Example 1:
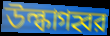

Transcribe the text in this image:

উল্কাগহ্বর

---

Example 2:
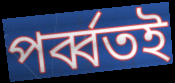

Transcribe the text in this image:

পর্ব্বতই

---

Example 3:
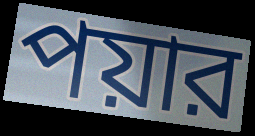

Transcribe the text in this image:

পয়ার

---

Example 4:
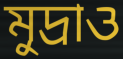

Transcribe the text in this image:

মুদ্রাও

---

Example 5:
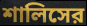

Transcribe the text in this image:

শালিসের